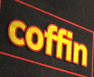
coffin